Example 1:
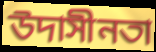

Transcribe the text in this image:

উদাসীনতা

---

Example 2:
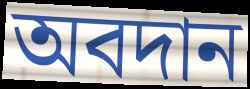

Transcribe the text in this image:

অবদান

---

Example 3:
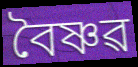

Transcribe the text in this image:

বৈষ্ণৱ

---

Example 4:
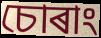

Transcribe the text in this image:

চোৰাং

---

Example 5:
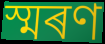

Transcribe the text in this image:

স্মৰণ